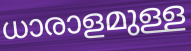
ധാരാളമുള്ള